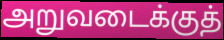
அறுவடைக்குத்